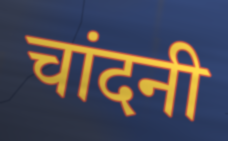
चांदनी